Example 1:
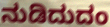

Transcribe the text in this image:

ನುಡಿದುದಂ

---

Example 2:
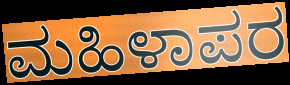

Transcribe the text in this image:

ಮಹಿಳಾಪರ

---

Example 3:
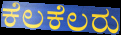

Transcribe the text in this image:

ಕೆಲಕೆಲರು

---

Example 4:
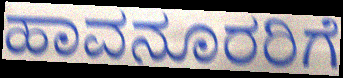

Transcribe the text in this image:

ಹಾವನೂರರಿಗೆ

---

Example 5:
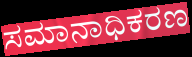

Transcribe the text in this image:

ಸಮಾನಾಧಿಕರಣ